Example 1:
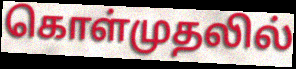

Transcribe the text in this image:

கொள்முதலில்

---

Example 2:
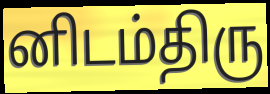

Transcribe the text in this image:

னிடம்திரு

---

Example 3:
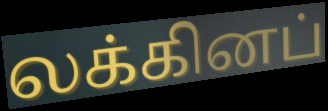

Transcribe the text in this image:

லக்கினப்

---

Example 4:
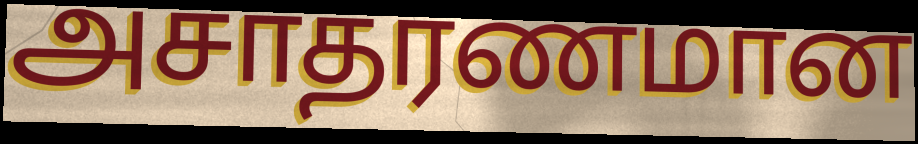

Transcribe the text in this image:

அசாதரணமான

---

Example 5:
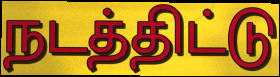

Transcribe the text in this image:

நடத்திட்டு